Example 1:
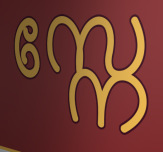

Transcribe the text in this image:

സ്നേ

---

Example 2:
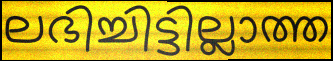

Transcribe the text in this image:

ലഭിച്ചിട്ടില്ലാത്ത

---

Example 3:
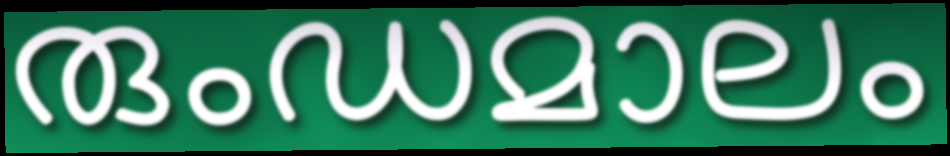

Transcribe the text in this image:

രുംഡമാലം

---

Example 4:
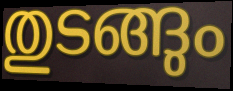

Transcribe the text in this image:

തുടങ്ങും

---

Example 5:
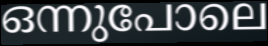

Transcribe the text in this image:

ഒന്നുപോലെ